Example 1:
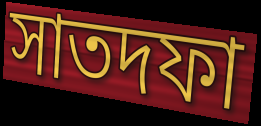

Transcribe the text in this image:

সাতদফা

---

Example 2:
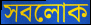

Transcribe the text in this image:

সবলোক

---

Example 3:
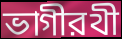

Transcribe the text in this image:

ভাগীরথী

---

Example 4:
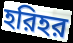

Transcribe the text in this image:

হরিহর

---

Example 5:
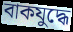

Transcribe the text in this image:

বাকযুদ্ধে